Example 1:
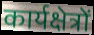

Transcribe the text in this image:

कार्यक्षेत्रों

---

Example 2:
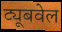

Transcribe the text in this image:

ट्यूबवेल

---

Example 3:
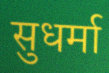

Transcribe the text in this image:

सुधर्मा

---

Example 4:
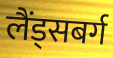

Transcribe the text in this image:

लैंड्सबर्ग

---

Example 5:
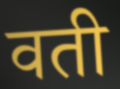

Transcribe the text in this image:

वती